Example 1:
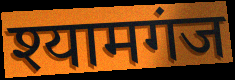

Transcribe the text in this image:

श्यामगंज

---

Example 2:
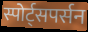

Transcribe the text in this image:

स्पोर्ट्सपर्सन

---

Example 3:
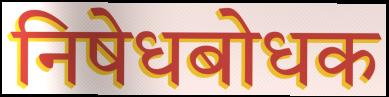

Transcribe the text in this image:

निषेधबोधक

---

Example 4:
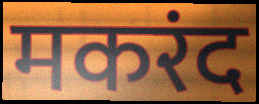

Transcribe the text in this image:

मकरंद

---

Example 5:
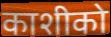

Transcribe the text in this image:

काशीको